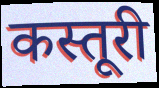
कस्तूरी